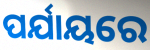
ପର୍ଯାୟରେ